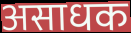
असाधक